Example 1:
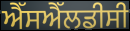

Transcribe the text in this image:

ਐੱਸਐੱਲਡੀਸੀ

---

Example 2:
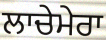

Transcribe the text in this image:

ਲਾਚੇਮੇਰਾ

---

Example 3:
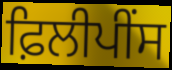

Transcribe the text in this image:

ਫ਼ਿਲੀਪੀਂਸ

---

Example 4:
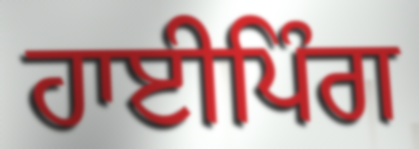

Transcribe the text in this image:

ਹਾਈਪਿੰਗ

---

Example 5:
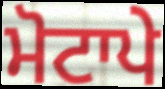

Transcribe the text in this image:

ਮੋਟਾਪੇ